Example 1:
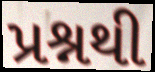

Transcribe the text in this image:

પ્રશ્નથી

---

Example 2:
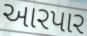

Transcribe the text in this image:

આરપાર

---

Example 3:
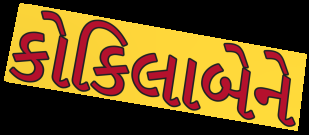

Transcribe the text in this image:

કોકિલાબેને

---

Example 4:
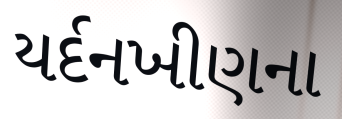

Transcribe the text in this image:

યર્દનખીણના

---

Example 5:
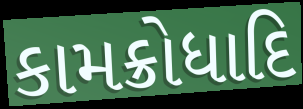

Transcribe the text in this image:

કામક્રોધાદિ